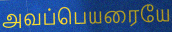
அவப்பெயரையே